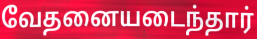
வேதனையடைந்தார்